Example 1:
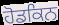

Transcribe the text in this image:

ਹੋਡਕਿਨ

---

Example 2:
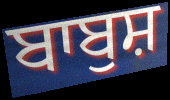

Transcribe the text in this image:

ਬਾਬੁਸ਼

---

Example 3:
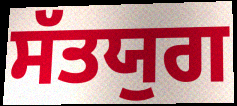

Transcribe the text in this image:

ਸੱਤਯੁਗ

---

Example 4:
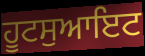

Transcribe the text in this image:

ਹੂਟਸੁਆਇਟ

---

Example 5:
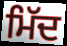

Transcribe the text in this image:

ਮਿੱਦ